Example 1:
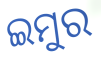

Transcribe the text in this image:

ଇମୁର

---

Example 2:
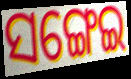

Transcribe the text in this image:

ସଙ୍ଗେଇ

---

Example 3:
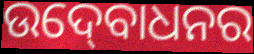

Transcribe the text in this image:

ଉଦ୍‍ବୋଧନର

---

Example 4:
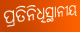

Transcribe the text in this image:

ପ୍ରତିନିଧିସ୍ଥାନୀୟ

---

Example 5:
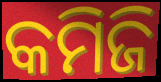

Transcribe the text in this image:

କମିଜି